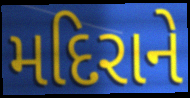
મદિરાને